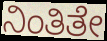
ನಿಂತಿತೇ